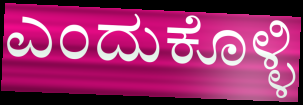
ಎಂದುಕೊಳ್ಳಿ